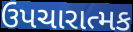
ઉપચારાત્મક